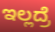
ಇಲ್ಲದ್ರೆ